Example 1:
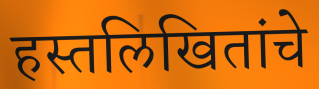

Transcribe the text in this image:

हस्तलिखितांचे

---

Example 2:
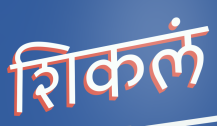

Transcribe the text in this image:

शिकलं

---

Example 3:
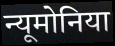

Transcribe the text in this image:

न्यूमोनिया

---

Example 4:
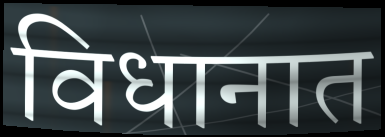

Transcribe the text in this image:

विधानात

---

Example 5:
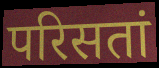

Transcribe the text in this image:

परिसतां